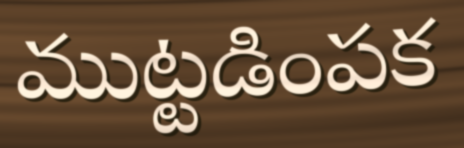
ముట్టడింపక